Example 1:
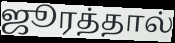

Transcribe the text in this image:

ஜூரத்தால்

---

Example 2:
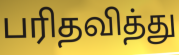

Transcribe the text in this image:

பரிதவித்து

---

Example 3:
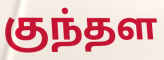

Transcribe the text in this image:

குந்தள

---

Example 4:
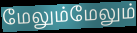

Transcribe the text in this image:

மேலும்மேலும்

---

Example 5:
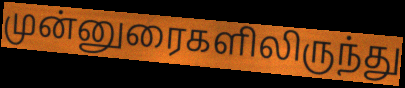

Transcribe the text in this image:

முன்னுரைகளிலிருந்து